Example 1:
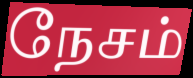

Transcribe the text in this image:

நேசம்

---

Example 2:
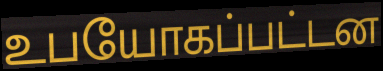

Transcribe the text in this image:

உபயோகப்பட்டன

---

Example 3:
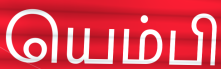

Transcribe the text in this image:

யெம்பி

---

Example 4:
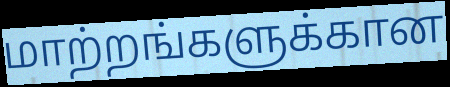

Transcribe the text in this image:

மாற்றங்களுக்கான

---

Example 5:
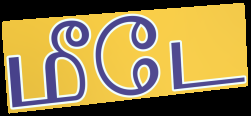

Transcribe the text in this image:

மீடே